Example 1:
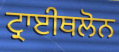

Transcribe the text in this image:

ਟ੍ਰਾਈਥਲੋਨ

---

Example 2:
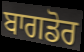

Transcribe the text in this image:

ਬਾਗਡੋਰ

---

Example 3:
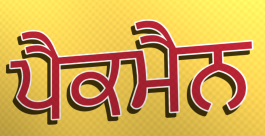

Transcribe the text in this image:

ਪੈਕਮੈਨ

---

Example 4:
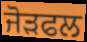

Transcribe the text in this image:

ਜੋੜਫਲ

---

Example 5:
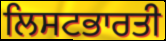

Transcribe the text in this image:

ਲਿਸਟਭਾਰਤੀ